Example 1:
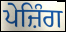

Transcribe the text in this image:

ਪੇਜ਼ਿੰਗ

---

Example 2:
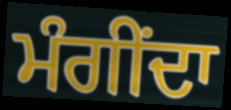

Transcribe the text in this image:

ਮੰਗੀਂਦਾ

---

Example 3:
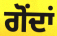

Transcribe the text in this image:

ਗੋਂਦਾਂ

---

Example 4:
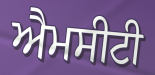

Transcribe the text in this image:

ਐਮਸੀਟੀ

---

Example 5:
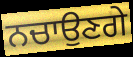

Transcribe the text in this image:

ਨਚਾਉਣਗੇ